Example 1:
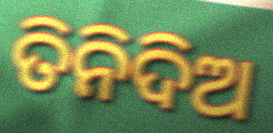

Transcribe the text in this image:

ତିନିଦିଅ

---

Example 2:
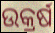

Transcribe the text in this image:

ଉକ୍ରର୍ଷ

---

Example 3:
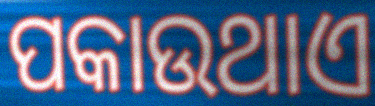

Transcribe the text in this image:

ପକାଉଥାଏ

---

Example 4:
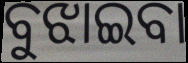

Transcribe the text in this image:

ବୁଝାଇବା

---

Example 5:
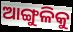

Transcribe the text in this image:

ଆଙ୍ଗୁଳିକୁ